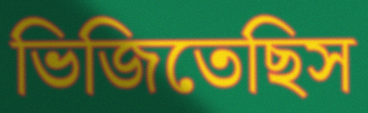
ভিজিতেছিস